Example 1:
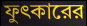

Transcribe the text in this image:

ফুৎকারের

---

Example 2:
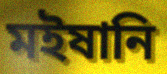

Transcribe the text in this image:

মইষানি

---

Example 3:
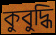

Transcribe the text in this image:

কুবুদ্ধি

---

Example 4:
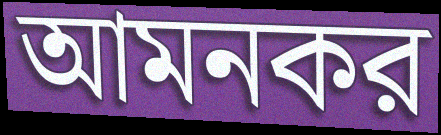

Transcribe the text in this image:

আমনকর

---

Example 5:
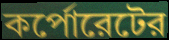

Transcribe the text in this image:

কর্পোরেটের